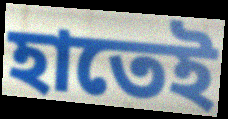
হাতেই